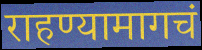
राहण्यामागचं